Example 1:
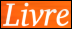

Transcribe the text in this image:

Livre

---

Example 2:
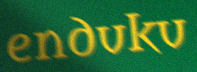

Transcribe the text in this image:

enduku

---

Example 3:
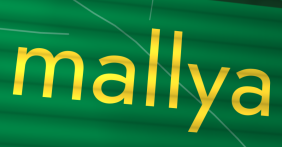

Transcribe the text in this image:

mallya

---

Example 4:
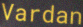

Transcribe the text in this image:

Vardan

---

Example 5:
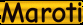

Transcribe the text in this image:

Maroti